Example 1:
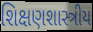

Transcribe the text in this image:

શિક્ષણશાસ્ત્રીય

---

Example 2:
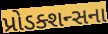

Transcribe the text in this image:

પ્રોડક્શન્સના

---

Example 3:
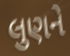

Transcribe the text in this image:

લુણને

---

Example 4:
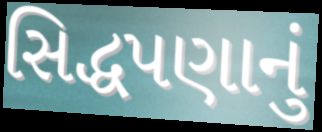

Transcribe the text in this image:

સિદ્ધપણાનું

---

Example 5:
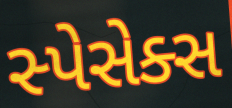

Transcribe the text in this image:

સ્પેસેક્સ